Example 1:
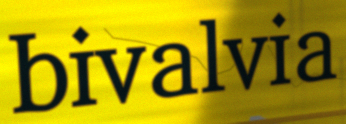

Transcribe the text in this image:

bivalvia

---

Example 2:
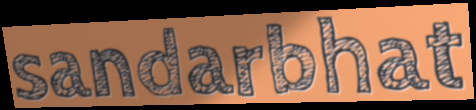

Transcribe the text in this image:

sandarbhat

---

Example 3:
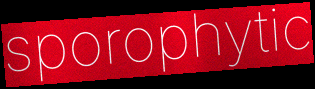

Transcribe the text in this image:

sporophytic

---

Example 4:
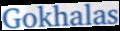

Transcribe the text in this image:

Gokhalas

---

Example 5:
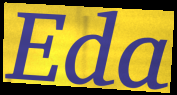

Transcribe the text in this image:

Eda